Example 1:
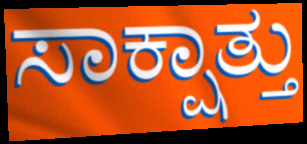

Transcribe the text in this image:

ಸಾಕ್ಷಾತ್ತು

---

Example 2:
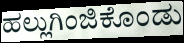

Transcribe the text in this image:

ಹಲ್ಲುಗಿಂಜಿಕೊಂಡು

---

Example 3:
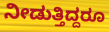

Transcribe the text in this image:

ನೀಡುತ್ತಿದ್ದರೂ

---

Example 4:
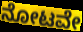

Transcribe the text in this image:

ನೋಟವೇ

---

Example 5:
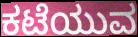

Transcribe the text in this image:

ಕಟೆಯುವ